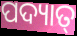
ପଦ୍ୟାତ୍